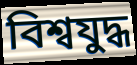
বিশ্বযুদ্ধ